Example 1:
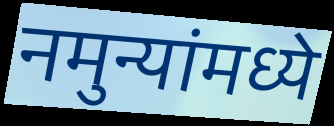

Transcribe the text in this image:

नमुन्यांमध्ये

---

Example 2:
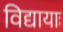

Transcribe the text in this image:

विद्यायाः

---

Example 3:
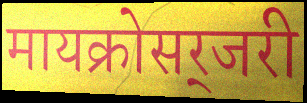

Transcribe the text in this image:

मायक्रोसर्जरी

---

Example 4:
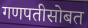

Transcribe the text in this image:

गणपतीसोबत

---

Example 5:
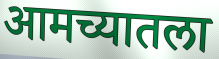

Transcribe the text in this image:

आमच्यातला